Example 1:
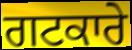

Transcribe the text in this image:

ਗਟਕਾਰੇ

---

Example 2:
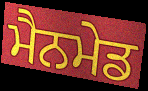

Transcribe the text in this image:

ਮੈਨਮੇਡ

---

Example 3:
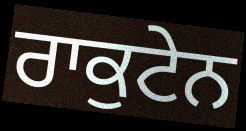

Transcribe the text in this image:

ਰਾਕੁਟੇਨ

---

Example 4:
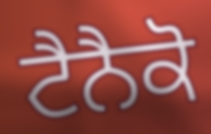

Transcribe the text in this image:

ਟੈਨੈਕੋ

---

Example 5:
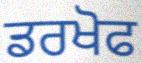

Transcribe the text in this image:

ਡਰਖੋਫ